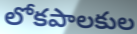
లోకపాలకుల